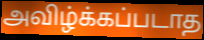
அவிழ்க்கப்படாத